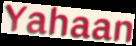
Yahaan